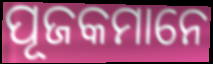
ପୂଜକମାନେ